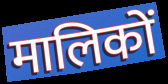
मालिकों